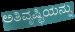
ಅತಿವೃಷ್ಟಿಯನ್ನು